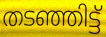
തടഞ്ഞിട്ട്